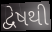
દ્વેષથી